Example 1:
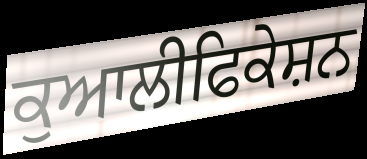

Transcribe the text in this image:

ਕੁਆਲੀਫਿਕੇਸ਼ਨ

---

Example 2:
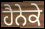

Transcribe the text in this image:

ਹੈਨੇਕੇ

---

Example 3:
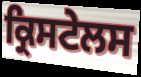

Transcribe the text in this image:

ਕ੍ਰਿਸਟੇਲਸ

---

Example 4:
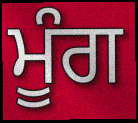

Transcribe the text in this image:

ਮੂੰਗ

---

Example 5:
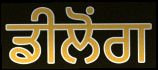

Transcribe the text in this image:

ਡੀਲੋਂਗ